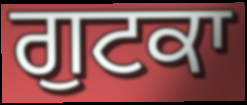
ਗੁਟਕਾ